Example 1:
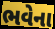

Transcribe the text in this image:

ભવેના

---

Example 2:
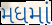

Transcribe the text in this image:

મધમાં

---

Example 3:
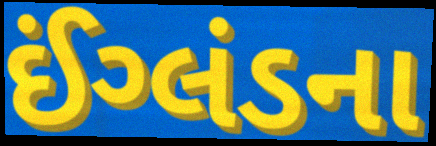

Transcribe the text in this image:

ઈંગ્લંડના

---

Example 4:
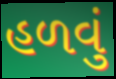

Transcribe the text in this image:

હળવું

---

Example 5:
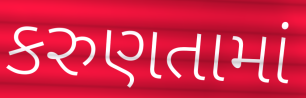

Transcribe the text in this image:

કરુણતામાં